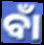
ବାଁ